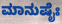
ಮಾನುಷೈಃ